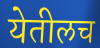
येतीलच